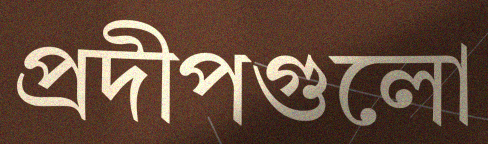
প্রদীপগুলো